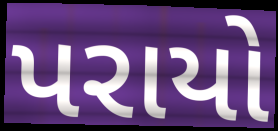
પરાયો